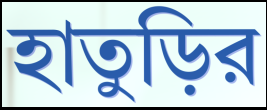
হাতুড়ির